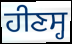
ਹੀਣਸ੍ਹ